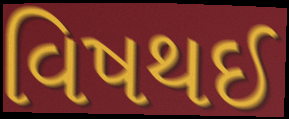
વિષથઈ